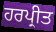
ਹਰਪ੍ਰੀਤ